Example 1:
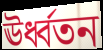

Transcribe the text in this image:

ঊর্ধ্বতন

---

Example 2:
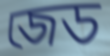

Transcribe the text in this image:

জেড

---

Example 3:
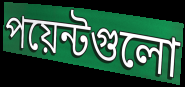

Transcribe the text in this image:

পয়েন্টগুলো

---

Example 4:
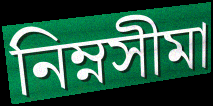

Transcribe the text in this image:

নিম্নসীমা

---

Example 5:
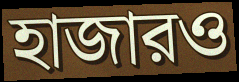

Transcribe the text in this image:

হাজারও